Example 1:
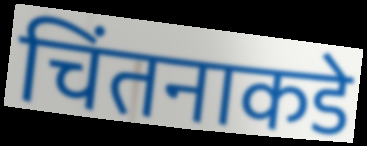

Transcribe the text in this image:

चिंतनाकडे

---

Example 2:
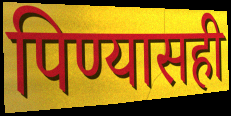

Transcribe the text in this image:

पिण्यासही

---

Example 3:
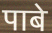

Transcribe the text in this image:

पाबे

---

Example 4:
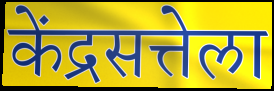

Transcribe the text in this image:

केंद्रसत्तेला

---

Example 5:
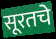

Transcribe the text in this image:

सूरतचे